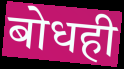
बोधही